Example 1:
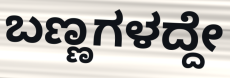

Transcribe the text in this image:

ಬಣ್ಣಗಳದ್ದೇ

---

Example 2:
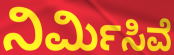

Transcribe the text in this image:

ನಿರ್ಮಿಸಿವೆ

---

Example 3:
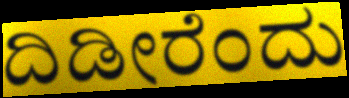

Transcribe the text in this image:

ದಿಡೀರೆಂದು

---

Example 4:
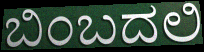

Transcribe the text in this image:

ಬಿಂಬದಲಿ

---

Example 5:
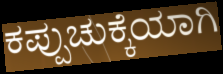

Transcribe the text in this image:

ಕಪ್ಪುಚುಕ್ಕೆಯಾಗಿ